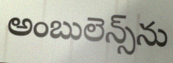
అంబులెన్స్‌ను